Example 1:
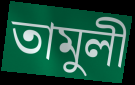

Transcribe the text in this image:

তামুলী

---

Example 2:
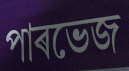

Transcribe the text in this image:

পাৰভেজ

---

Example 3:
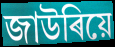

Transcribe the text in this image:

জাউৰিয়ে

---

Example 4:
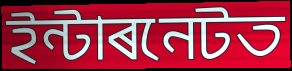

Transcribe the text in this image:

ইন্টাৰনেটত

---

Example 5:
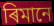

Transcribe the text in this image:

ৰিমানে